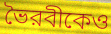
ভৈরবীকেও